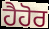
ਹੈਹੋਰ